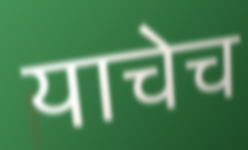
याचेच